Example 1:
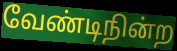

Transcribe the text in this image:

வேண்டிநின்ற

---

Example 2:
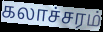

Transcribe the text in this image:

கலாச்சரம்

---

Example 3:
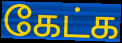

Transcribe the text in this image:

கேட்க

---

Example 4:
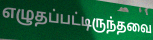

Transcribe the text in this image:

எழுதப்பட்டிருந்தவை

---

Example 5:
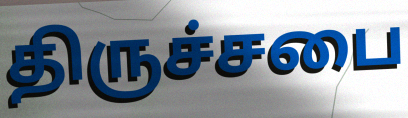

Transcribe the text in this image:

திருச்சபை